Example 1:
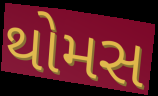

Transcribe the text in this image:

થોમસ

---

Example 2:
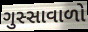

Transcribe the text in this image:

ગુસ્સાવાળો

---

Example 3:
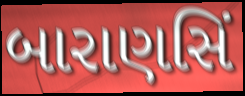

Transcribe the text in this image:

બારાણસિં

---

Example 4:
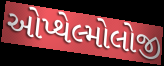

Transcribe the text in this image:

ઓપ્થેલ્મોલોજી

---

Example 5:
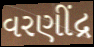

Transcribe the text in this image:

વરણીંદ્ર